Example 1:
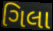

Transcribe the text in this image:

ગિલા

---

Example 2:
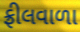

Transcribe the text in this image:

ફ્રીલવાળા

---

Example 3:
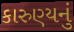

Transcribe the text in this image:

કારુણ્યનું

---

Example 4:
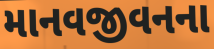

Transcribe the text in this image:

માનવજીવનના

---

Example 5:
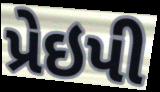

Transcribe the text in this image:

પ્રેઇપી